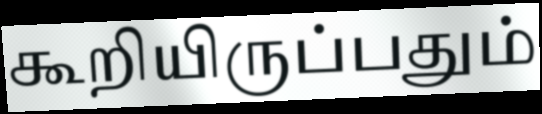
கூறியிருப்பதும்